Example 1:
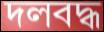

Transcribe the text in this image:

দলবদ্ধ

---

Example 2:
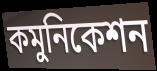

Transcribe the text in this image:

কমুনিকেশন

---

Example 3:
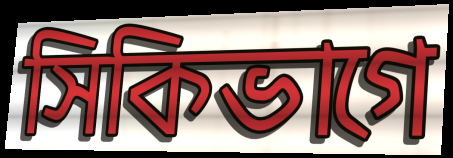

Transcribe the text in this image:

সিকিভাগে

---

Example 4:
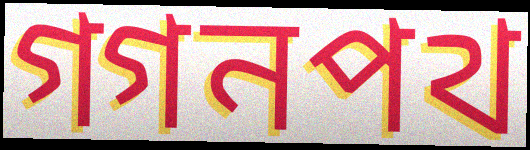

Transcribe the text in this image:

গগনপথ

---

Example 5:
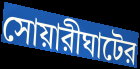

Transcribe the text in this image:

সোয়ারীঘাটের